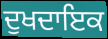
ਦੁਖਦਾਇਕ